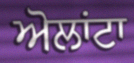
ਅੋਲਾਂਟਾ